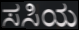
ಸಸಿಯ